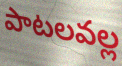
పాటలవల్ల